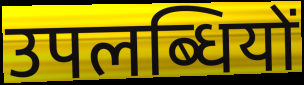
उपलब्धियों